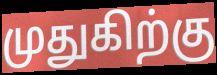
முதுகிற்கு